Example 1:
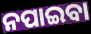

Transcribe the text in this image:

ନପାଇବା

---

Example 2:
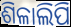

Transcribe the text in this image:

ଶିଳାଲିପି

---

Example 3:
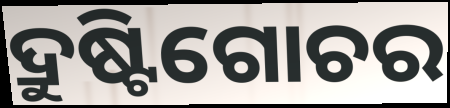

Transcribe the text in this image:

ଦ୍ରୁଷ୍ଟିଗୋଚର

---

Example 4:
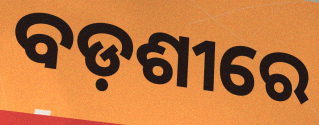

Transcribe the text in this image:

ବଡ଼ଶୀରେ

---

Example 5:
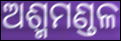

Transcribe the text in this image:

ଅଶ୍ମମଣ୍ଡଳ